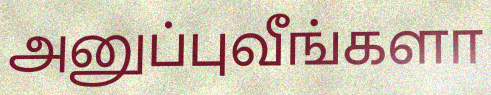
அனுப்புவீங்களா